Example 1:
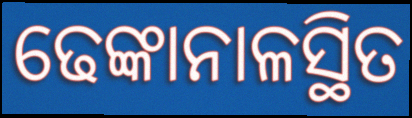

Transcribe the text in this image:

ଢେଙ୍କାନାଳସ୍ଥିତ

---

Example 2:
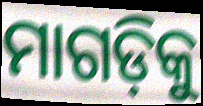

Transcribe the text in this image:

ମାଗଡ଼ିକୁ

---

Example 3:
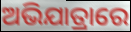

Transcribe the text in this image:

ଅଭିଯାତ୍ରାରେ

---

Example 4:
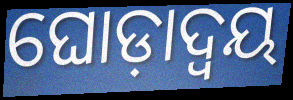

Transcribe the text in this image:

ଘୋଡ଼ାଦ୍ୱୟ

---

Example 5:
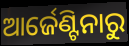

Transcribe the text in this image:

ଆର୍ଜେଣ୍ଟିନାରୁ